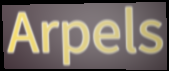
Arpels